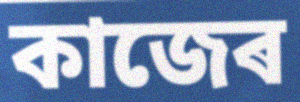
কাজেৰ